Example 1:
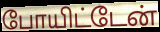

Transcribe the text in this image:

போயிட்டேன்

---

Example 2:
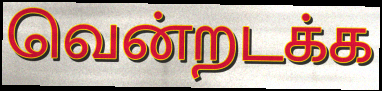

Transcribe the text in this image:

வென்றடக்க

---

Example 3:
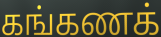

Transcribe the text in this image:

கங்கணக்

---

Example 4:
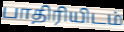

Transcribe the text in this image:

பாதிரியிடம்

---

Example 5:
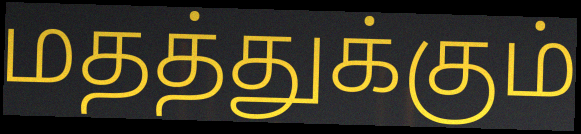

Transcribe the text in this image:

மதத்துக்கும்